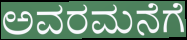
ಅವರಮನೆಗೆ